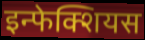
इन्फेक्शियस